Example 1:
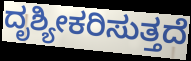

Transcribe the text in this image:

ದೃಶ್ಯೀಕರಿಸುತ್ತದೆ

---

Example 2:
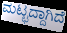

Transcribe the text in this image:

ಮಟ್ಟದ್ದಾಗಿದೆ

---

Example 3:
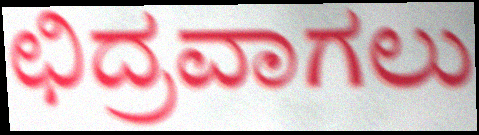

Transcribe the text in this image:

ಛಿದ್ರವಾಗಲು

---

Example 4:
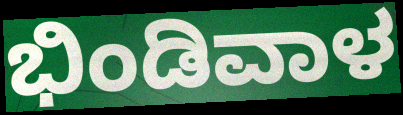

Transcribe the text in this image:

ಭಿಂಡಿವಾಳ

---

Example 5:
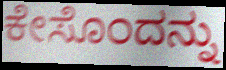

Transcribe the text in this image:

ಕೇಸೊಂದನ್ನು